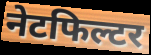
नेटफिल्टर